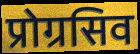
प्रोग्रसिव